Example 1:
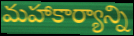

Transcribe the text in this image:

మహాకార్యాన్ని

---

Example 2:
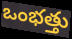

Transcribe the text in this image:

ఒంభత్తు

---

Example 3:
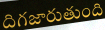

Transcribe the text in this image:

దిగజారుతుంది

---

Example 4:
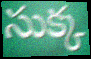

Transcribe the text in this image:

సుక్క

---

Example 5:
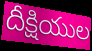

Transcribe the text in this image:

దీక్షియుల